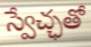
స్వేచ్ఛతో